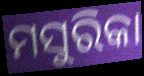
ମସୁରିକା